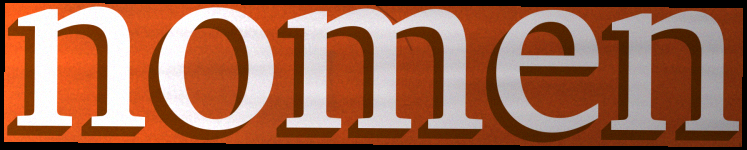
nomen